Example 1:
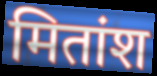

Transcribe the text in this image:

मितांश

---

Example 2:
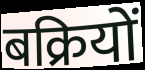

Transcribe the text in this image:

बक्रियों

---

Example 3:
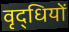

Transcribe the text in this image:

वृद्धियों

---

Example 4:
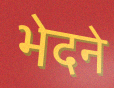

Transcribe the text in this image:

भेदने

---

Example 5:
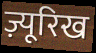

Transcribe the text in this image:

ज़्यूरिख